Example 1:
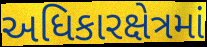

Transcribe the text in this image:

અધિકારક્ષેત્રમાં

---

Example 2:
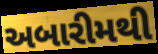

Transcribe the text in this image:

અબારીમથી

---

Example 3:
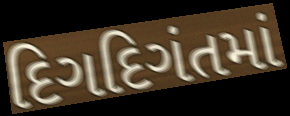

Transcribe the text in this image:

દિગદિગંતમાં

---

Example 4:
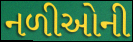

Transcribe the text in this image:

નળીઓની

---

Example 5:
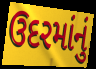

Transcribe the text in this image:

ઉદરમાંનું